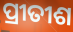
ପ୍ରୀତୀଶ